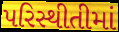
પરિસ્થીતીમાં